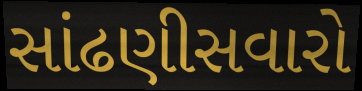
સાંઢણીસવારો